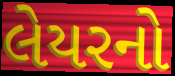
લેયરનો